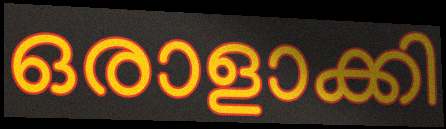
ഒരാളാക്കി